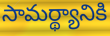
సామర్థ్యానికి